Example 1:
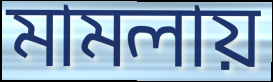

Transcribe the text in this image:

মামলায়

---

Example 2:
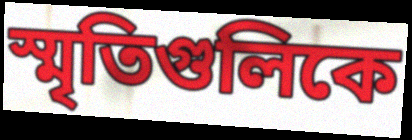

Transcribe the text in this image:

স্মৃতিগুলিকে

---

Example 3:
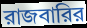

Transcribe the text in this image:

রাজবারির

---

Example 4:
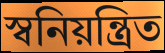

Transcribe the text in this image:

স্বনিয়ন্ত্রিত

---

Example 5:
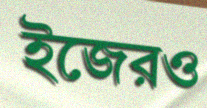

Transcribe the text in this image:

ইজেরও